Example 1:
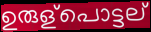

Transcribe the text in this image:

ഉരുള്പൊട്ടല്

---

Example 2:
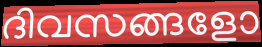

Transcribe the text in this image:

ദിവസങ്ങളോ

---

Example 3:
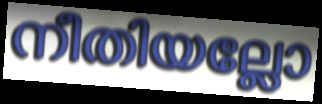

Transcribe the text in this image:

നീതിയല്ലോ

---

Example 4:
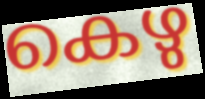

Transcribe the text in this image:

കെഴു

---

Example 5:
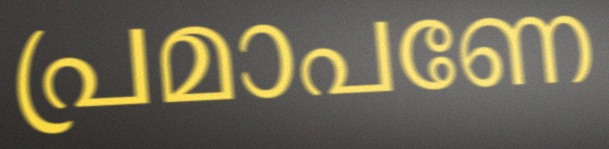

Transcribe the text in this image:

പ്രമാപണേ